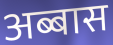
अब्बास